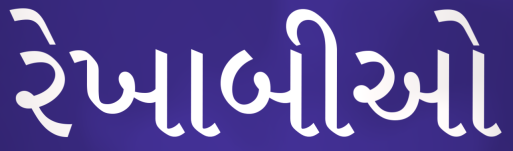
રેખાબીઓ